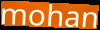
mohan